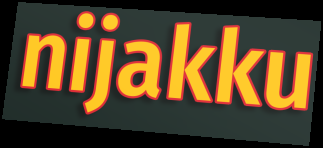
nijakku